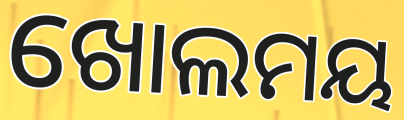
ଖୋଲମୟ